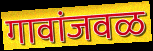
गावांजवळ